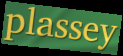
plassey